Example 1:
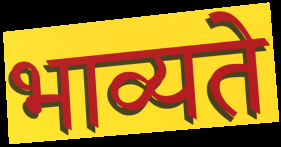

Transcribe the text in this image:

भाव्यते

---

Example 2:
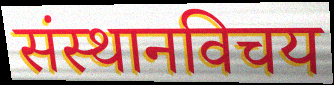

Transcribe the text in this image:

संस्थानविचय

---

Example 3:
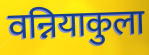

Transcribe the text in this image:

वन्नियाकुला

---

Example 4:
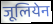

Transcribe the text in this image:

जूलियेन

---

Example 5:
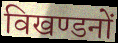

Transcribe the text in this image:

विखण्डनों